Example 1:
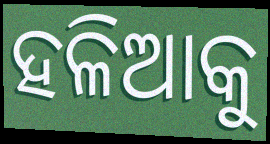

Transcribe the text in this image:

ହଳିଆକୁ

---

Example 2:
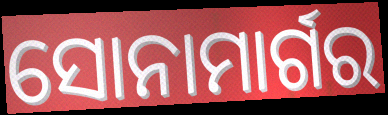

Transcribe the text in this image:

ସୋନାମାର୍ଗର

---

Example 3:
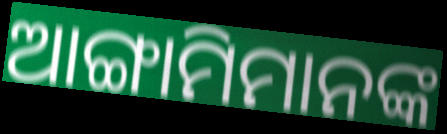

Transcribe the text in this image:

ଆଙ୍ଗାମିମାନଙ୍କ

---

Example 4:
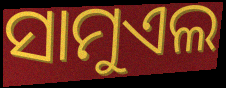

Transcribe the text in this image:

ସାମୁଏଲ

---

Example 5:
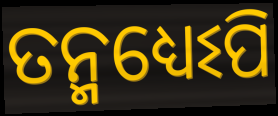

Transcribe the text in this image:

ତନ୍ମଧ୍ୟେଽପି